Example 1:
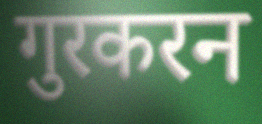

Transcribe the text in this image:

गुरकरन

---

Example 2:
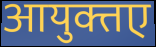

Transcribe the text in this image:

आयुक्तए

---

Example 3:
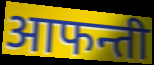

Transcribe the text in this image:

आफन्ती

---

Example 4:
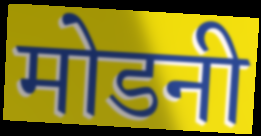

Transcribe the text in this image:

मोडनी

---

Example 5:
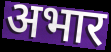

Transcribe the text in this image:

अभार